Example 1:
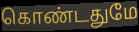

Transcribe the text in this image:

கொண்டதுமே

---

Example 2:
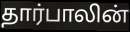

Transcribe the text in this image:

தார்பாலின்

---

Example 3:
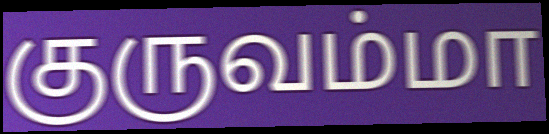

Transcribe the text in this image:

குருவம்மா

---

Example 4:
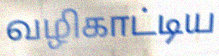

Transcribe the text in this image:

வழிகாட்டிய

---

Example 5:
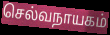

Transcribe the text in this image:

செல்வநாயகம்